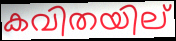
കവിതയില്